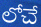
లోచే